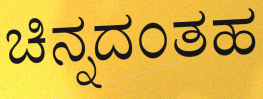
ಚಿನ್ನದಂತಹ